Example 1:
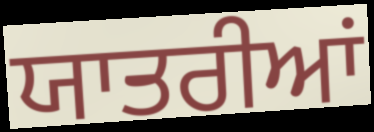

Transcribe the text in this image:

ਯਾਤਰੀਆਂ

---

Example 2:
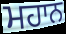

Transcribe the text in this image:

ਮਹਾਨ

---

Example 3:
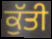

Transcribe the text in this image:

ਕੁੱਤੀ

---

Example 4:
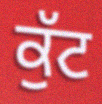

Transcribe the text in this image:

ਕੁੱਟ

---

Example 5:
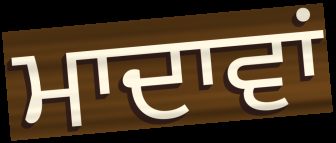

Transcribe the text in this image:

ਮਾਦਾਵਾਂ